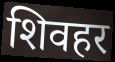
शिवहर